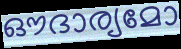
ഔദാര്യമോ